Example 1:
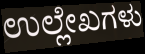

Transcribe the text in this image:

ಉಲ್ಲೇಖಗಳು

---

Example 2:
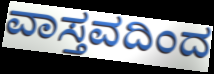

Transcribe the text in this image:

ವಾಸ್ತವದಿಂದ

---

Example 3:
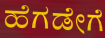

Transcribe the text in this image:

ಹೆಗಡೇಗೆ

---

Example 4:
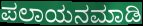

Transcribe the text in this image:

ಪಲಾಯನಮಾಡಿ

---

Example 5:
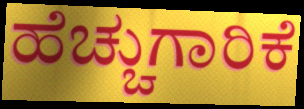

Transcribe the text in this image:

ಹೆಚ್ಚುಗಾರಿಕೆ